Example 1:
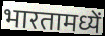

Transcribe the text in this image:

भारतामध्यें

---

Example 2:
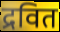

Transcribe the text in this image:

द्रवित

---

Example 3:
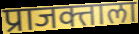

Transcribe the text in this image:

प्राजक्ताला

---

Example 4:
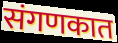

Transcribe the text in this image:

संगणकात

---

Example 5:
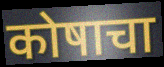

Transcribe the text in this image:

कोषाचा